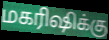
மகரிஷிக்கு